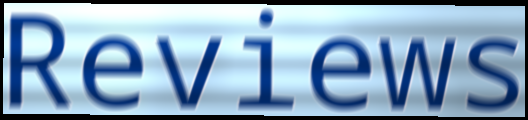
Reviews